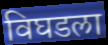
विघडला